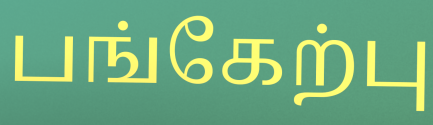
பங்கேற்பு